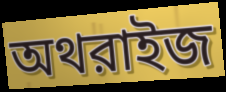
অথরাইজ